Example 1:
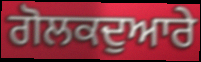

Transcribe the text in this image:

ਗੋਲਕਦੁਆਰੇ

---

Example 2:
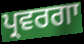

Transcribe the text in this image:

ਪ੍ਰਵਰਗਾ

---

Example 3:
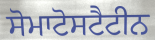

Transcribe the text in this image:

ਸੋਮਾਟੋਸਟੈਟੀਨ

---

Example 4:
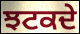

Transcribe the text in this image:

ਝਟਕਦੇ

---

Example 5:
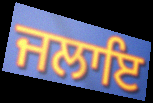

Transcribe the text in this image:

ਜਲਾਇ